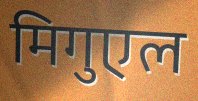
मिगुएल